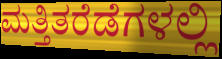
ಮತ್ತಿತರೆಡೆಗಳಲ್ಲಿ